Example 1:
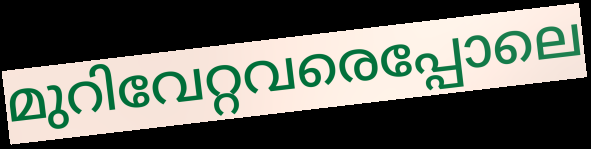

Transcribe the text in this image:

മുറിവേറ്റവരെപ്പോലെ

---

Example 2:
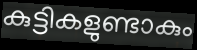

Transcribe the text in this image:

കുട്ടികളുണ്ടാകും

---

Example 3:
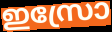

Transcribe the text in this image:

ഇസ്രോ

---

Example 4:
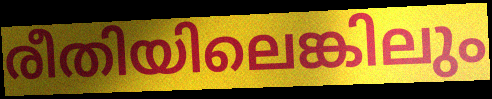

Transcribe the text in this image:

രീതിയിലെങ്കിലും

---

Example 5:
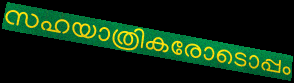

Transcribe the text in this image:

സഹയാത്രികരോടൊപ്പം